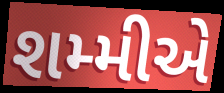
શમ્મીએ